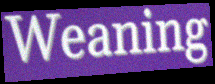
Weaning